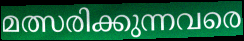
മത്സരിക്കുന്നവരെ